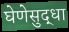
घेणेसुद्धा